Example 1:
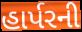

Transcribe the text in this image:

હાર્પરની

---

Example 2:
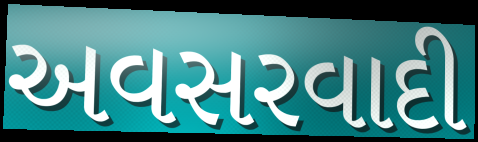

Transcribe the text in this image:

અવસરવાદી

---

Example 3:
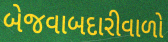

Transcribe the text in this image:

બેજવાબદારીવાળો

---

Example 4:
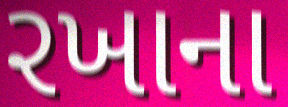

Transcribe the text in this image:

રખાના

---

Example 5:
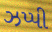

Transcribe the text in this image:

ઝપ્પી